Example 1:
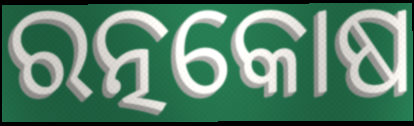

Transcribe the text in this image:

ରତ୍ନକୋଷ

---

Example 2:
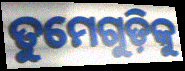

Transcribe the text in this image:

ତୁମେଗୁଡ଼ିକୁ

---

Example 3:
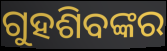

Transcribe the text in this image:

ଗୁହଶିବଙ୍କର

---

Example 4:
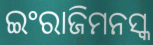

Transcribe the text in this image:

ଇଂରାଜିମନସ୍କ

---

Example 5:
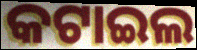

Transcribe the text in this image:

କଟାଇଲ